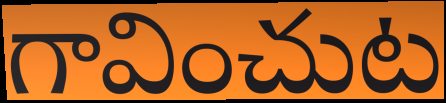
గావించుట